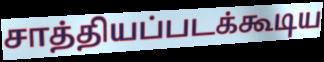
சாத்தியப்படக்கூடிய